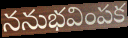
ననుభవింపక